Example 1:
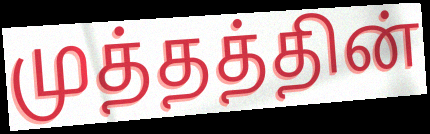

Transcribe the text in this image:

முத்தத்தின்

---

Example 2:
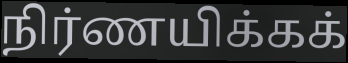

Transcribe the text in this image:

நிர்ணயிக்கக்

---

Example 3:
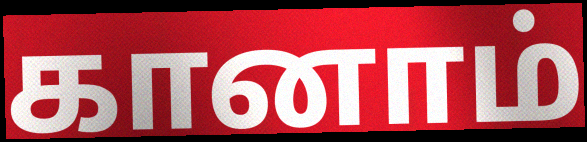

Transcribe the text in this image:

கானாம்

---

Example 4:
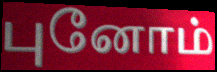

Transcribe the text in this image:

புனோம்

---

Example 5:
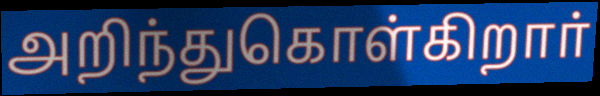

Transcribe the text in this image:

அறிந்துகொள்கிறார்